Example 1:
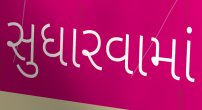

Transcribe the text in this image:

સુધારવામાં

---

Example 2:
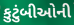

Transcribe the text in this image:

કુટુંબીઓની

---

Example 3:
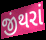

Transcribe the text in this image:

જીંથરાં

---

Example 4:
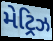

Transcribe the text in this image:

મેટ્રિઝ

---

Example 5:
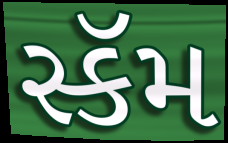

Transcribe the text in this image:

સ્કૅમ